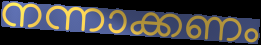
നന്നാക്കണം